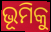
ଭୂମିକୁ